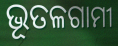
ଭୂତଳଗାମୀ